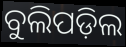
ବୁଲିପଡ଼ିଲ